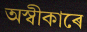
অস্বীকাৰে